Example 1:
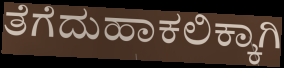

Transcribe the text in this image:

ತೆಗೆದುಹಾಕಲಿಕ್ಕಾಗಿ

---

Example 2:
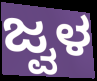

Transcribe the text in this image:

ಜ್ವಳ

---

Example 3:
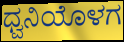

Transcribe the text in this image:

ಧ್ವನಿಯೊಳಗ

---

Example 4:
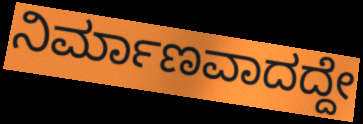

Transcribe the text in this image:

ನಿರ್ಮಾಣವಾದದ್ದೇ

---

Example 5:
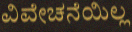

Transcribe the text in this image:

ವಿವೇಚನೆಯಿಲ್ಲ